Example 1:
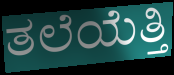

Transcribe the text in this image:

ತಲೆಯೆತ್ತಿ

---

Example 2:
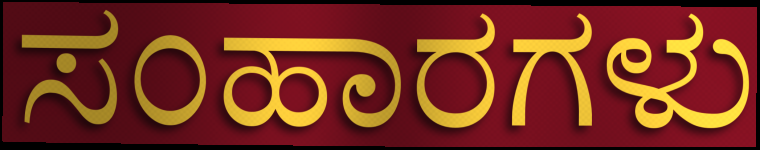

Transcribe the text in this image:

ಸಂಹಾರಗಳು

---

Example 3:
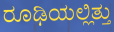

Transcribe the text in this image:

ರೂಢಿಯಲ್ಲಿತ್ತು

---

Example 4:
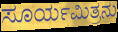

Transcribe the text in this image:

ಸೂರ್ಯಮಿತ್ರನು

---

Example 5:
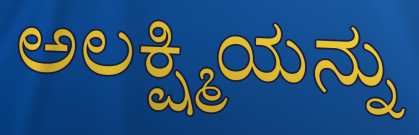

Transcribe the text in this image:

ಅಲಕ್ಷ್ಮಿಯನ್ನು